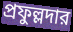
প্রফুল্লদার